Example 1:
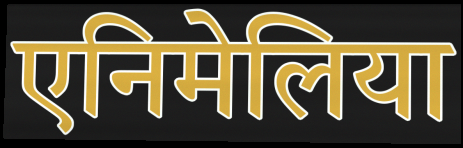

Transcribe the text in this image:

एनिमेलिया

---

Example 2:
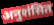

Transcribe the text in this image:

अनुशंसित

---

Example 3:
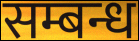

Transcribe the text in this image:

सम्बन्ध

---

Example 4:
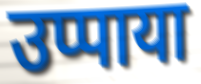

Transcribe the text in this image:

उप्पाया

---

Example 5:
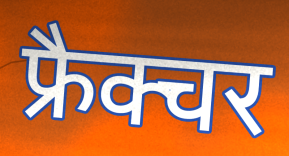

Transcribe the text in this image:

फ्रैक्चर